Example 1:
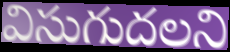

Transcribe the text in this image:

విసుగుదలని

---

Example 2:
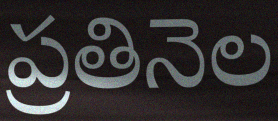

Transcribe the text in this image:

ప్రతినెల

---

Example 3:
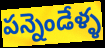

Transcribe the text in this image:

పన్నెండేళ్ళ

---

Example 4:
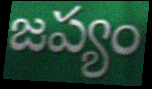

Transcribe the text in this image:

జప్యం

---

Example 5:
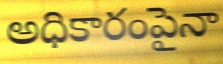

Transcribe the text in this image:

అధికారంపైనా